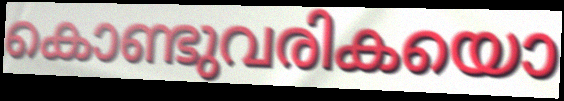
കൊണ്ടുവരികയൊ